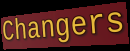
Changers